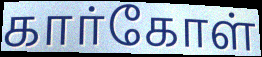
கார்கோள்